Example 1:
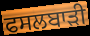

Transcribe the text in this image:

ਫਸਲਬਾੜੀ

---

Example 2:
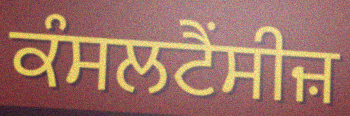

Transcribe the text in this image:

ਕੰਸਲਟੈਂਸੀਜ਼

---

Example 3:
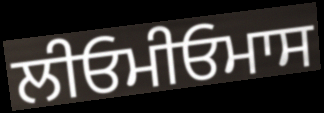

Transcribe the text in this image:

ਲੀਓਮੀਓਮਾਸ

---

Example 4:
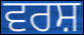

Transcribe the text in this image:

ਵਰਸ਼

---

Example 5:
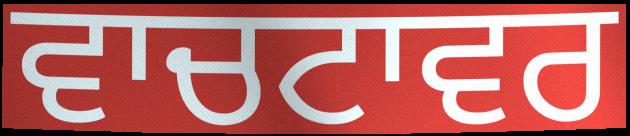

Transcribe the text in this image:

ਵਾਚਟਾਵਰ